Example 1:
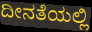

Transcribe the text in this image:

ದೀನತೆಯಲ್ಲಿ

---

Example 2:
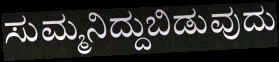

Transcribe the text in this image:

ಸುಮ್ಮನಿದ್ದುಬಿಡುವುದು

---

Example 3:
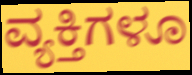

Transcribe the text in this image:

ವ್ಯಕ್ತಿಗಳೂ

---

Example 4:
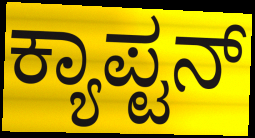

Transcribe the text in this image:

ಕ್ಯಾಪ್ಟನ್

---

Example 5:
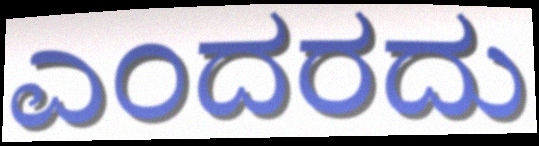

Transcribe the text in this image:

ಎಂದರದು